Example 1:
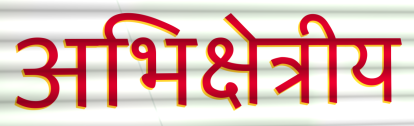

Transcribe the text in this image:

अभिक्षेत्रीय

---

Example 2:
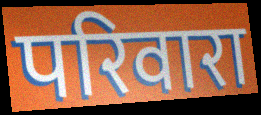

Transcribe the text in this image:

परिवारा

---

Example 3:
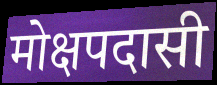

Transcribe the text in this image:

मोक्षपदासी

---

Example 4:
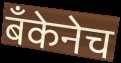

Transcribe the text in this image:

बँकेनेच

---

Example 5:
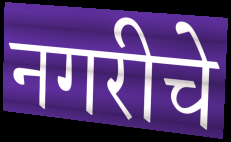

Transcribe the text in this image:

नगरीचे